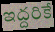
ఇద్దరికే